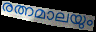
രത്നമാലയും